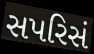
સપરિસં